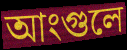
আংগুলে